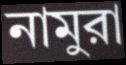
নামুরা